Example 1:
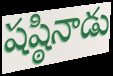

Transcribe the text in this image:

షష్ఠినాడు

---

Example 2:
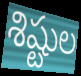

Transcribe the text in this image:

శిష్టుల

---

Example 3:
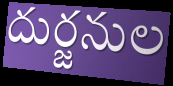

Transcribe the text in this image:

దుర్జనుల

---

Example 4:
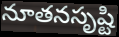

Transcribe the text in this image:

నూతనసృష్టి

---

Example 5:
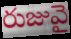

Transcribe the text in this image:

రుజువై